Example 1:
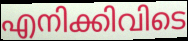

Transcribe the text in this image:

എനിക്കിവിടെ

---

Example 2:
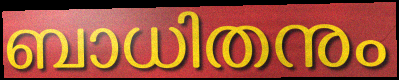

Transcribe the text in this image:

ബാധിതനും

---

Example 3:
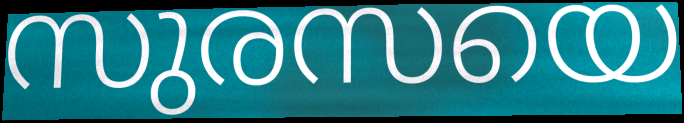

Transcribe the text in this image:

സുരസയെ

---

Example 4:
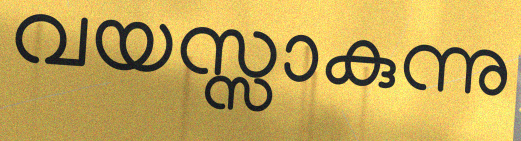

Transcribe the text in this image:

വയസ്സാകുന്നു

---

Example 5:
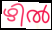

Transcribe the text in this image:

ഴിൽ